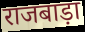
राजबाड़ा